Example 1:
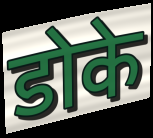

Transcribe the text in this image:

डोके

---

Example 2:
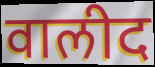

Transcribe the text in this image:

वालीद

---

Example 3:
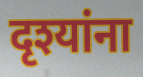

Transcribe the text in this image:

दृश्यांना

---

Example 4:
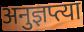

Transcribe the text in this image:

अनुज्ञप्त्या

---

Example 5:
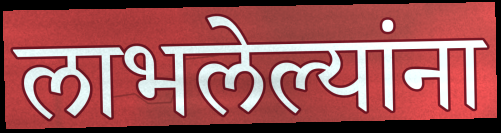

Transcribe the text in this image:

लाभलेल्यांना